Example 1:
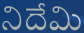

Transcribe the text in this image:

నిదేమి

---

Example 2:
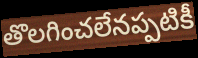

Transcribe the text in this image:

తొలగించలేనప్పటికీ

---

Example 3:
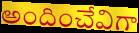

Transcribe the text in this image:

అందించేవిగా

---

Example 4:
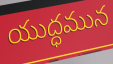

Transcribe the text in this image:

యుద్ధమున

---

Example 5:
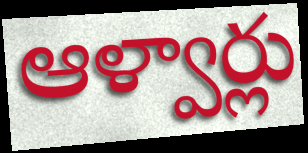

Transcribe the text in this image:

ఆళ్వార్లు